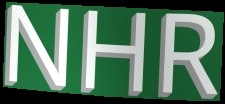
NHR